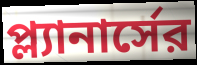
প্ল্যানার্সের